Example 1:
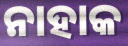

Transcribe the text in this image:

ନାହାକ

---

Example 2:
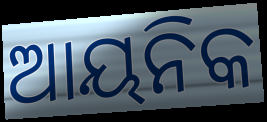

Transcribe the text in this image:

ଆୟନିକ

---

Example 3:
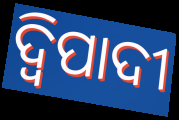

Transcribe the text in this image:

ଦ୍ୱିପାଦୀ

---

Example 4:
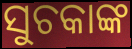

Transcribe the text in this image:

ସୁଚକାଙ୍କ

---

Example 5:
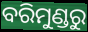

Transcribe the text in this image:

ବରିମୁଣ୍ଡରୁ